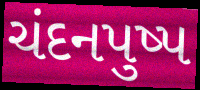
ચંદનપુષ્પ